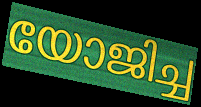
യോജിച്ച